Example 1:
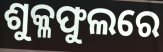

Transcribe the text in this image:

ଶୁକ୍ଳଫୁଲରେ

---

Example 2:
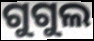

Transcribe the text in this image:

ଗୁଗୁଲ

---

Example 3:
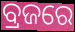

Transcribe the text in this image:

ବ୍ରଜରେ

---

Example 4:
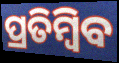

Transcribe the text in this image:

ପ୍ରତିମ୍ବିବ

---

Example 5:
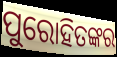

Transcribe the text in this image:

ପୁରୋହିତଙ୍କର